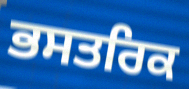
ਭਸਤਰਿਕ